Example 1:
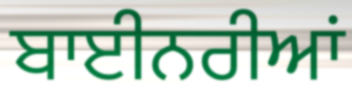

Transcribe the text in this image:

ਬਾਈਨਰੀਆਂ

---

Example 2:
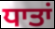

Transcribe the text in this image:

ਧਾਤਾਂ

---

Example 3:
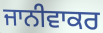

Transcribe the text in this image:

ਜਾਨੀਵਾਕਰ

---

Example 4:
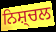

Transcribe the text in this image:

ਨਿਸ਼੍ਚਲ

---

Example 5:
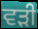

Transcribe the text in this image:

ਵੜੀ